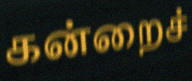
கன்றைச்